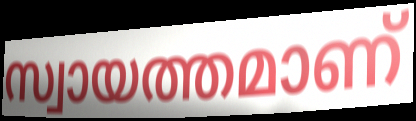
സ്വായത്തമാണ്